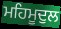
ਮਹਿਮੂਦੁਲ